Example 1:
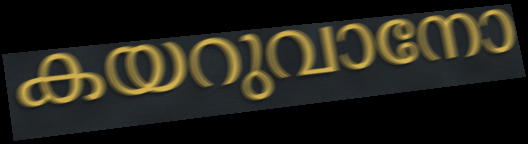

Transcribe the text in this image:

കയറുവാനോ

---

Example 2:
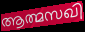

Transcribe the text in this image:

ആത്മസഖി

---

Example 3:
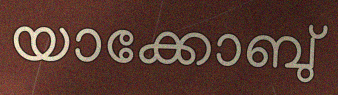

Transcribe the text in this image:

യാക്കോബു്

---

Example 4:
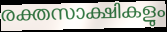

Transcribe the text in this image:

രക്തസാക്ഷികളും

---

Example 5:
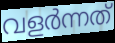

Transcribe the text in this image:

വളർന്നത്